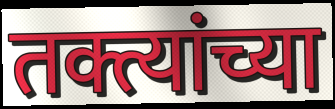
तक्त्यांच्या